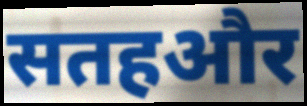
सतहऔर